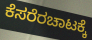
ಕೆಸರೆರಚಾಟಕ್ಕೆ